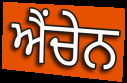
ਐਂਚੇਨ